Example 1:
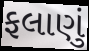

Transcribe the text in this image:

ફલાણું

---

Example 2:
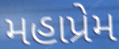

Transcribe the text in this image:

મહાપ્રેમ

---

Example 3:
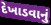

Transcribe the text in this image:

દેખાડવાનું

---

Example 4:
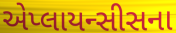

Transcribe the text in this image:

એપ્લાયન્સીસના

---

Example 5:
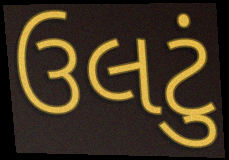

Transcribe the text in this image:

ઉલટું